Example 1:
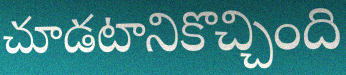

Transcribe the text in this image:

చూడటానికొచ్చింది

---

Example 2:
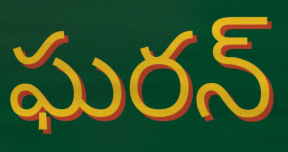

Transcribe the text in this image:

ఘరన్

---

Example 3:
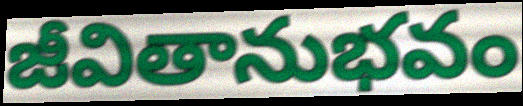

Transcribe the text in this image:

జీవితానుభవం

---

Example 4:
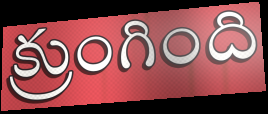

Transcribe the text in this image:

క్రుంగింది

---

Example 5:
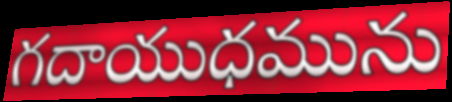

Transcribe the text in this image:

గదాయుధమును